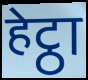
हेट्ठा